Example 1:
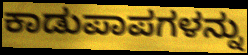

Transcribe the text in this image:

ಕಾಡುಪಾಪಗಳನ್ನು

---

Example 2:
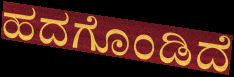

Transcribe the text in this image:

ಹದಗೊಂಡಿದೆ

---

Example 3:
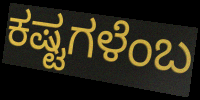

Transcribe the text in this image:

ಕಷ್ಟಗಳೆಂಬ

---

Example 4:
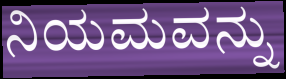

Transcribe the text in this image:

ನಿಯಮವನ್ನು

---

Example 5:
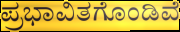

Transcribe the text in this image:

ಪ್ರಭಾವಿತಗೊಂಡಿವೆ